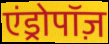
एंड्रोपॉज़